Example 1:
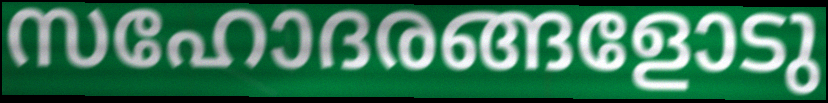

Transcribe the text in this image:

സഹോദരങ്ങളോടു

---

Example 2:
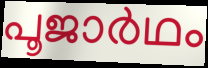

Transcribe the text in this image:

പൂജാർഥം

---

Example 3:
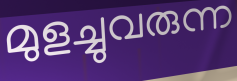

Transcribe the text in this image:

മുളച്ചുവരുന്ന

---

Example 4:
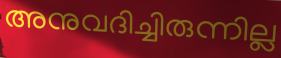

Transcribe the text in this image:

അനുവദിച്ചിരുന്നില്ല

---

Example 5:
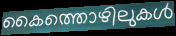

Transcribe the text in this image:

കൈത്തൊഴിലുകൾ